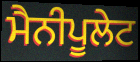
ਮੈਨੀਪੂਲੇਟ